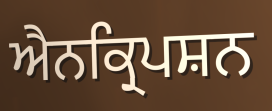
ਐਨਕ੍ਰਿਪਸ਼ਨ